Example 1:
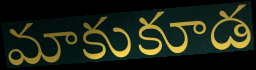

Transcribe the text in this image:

మాకుకూడ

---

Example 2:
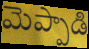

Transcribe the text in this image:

మెప్పాడి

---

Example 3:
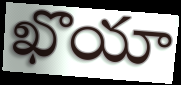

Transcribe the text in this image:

ఖొయా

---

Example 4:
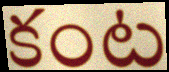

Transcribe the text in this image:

కంట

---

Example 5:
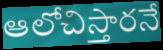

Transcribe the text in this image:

ఆలోచిస్తారనే